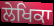
ਲੇਖਿਕਾ